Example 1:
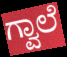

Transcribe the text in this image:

ಗ್ವಾಲೆ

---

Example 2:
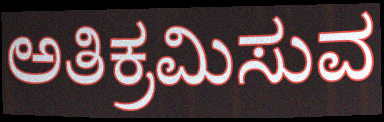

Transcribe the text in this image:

ಅತಿಕ್ರಮಿಸುವ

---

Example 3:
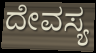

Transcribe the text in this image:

ದೇವಸ್ಯ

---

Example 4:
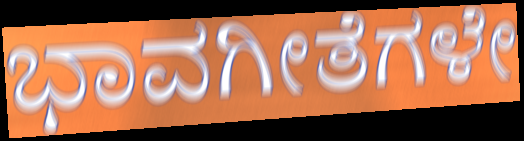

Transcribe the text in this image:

ಭಾವಗೀತೆಗಳೇ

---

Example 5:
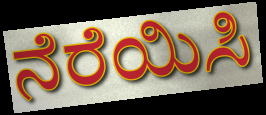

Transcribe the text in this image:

ನೆರೆಯಿಸಿ